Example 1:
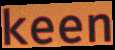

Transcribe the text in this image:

keen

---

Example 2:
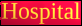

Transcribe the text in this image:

Hospital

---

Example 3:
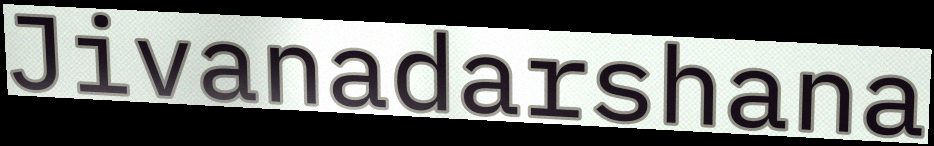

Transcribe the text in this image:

Jivanadarshana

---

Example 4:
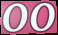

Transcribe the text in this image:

oo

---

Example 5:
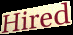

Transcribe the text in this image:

Hired